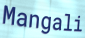
Mangali